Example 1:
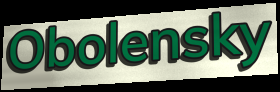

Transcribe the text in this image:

Obolensky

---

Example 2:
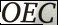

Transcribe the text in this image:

OEC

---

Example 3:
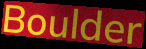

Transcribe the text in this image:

Boulder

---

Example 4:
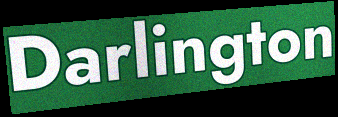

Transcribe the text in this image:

Darlington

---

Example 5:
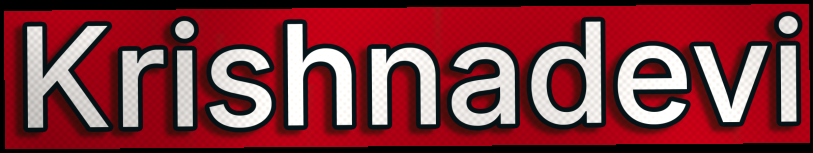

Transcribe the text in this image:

Krishnadevi